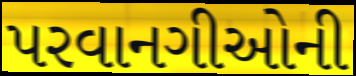
પરવાનગીઓની